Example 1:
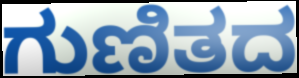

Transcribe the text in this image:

ಗುಣಿತದ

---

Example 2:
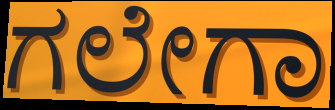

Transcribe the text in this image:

ಗಲೇಗಾ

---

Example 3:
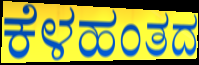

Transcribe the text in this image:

ಕೆಳಹಂತದ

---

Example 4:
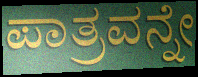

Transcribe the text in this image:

ಪಾತ್ರವನ್ನೇ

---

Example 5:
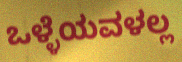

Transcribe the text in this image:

ಒಳ್ಳೆಯವಳಲ್ಲ